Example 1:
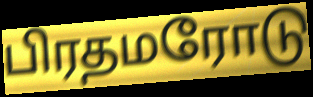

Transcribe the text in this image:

பிரதமரோடு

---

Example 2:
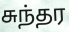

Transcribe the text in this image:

சுந்தர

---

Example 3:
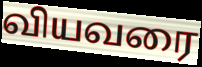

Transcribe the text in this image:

வியவரை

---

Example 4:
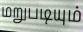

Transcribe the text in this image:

மறுபடியும்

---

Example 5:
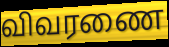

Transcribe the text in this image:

விவரணை